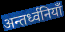
अन्तर्ध्वनियाँ